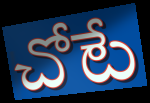
చోటే